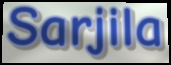
Sarjila